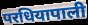
परधियापाली